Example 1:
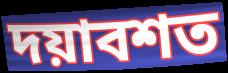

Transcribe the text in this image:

দয়াবশত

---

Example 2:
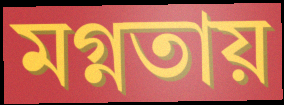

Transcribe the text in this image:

মগ্নতায়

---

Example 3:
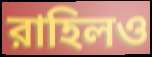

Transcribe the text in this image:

রাহিলও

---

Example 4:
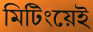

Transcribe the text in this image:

মিটিংয়েই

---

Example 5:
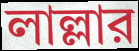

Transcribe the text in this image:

লাল্লার